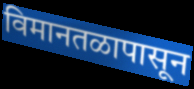
विमानतळापासून